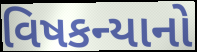
વિષકન્યાનો